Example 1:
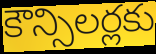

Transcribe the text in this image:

కౌన్సిలర్లకు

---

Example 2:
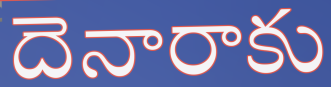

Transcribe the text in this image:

దెనారాకు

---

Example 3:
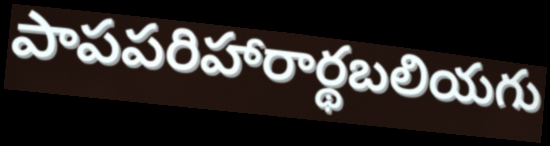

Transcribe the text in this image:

పాపపరిహారార్థబలియగు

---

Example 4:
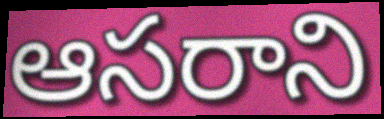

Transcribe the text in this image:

ఆసరాని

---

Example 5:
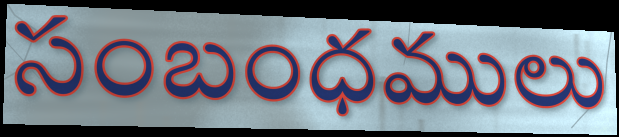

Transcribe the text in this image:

సంబంధములు